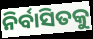
ନିର୍ବାସିତକୁ